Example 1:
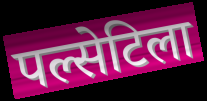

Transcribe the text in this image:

पल्सेटिला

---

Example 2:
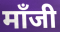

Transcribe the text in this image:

मॉंजी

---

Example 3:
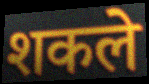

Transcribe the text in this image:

शकले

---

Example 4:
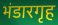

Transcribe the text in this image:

भंडारगृह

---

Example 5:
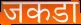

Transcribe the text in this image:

जकडा